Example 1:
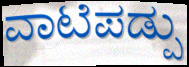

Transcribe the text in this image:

ವಾಟೆಪಡ್ಪು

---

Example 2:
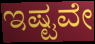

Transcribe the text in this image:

ಇಷ್ಟವೇ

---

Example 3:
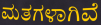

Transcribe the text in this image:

ಮತಗಳಾಗಿವೆ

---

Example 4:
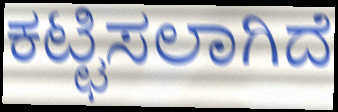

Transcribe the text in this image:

ಕಟ್ಟಿಸಲಾಗಿದೆ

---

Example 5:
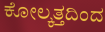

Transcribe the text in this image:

ಕೋಲ್ಕತ್ತದಿಂದ